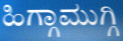
ಹಿಗ್ಗಾಮುಗ್ಗಿ